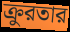
ক্রুরতার